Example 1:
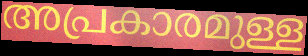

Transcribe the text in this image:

അപ്രകാരമുള്ള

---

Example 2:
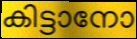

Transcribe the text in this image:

കിട്ടാനോ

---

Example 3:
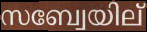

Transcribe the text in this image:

സബ്വേയില്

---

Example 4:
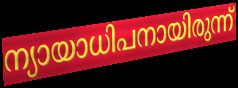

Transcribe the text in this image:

ന്യായാധിപനായിരുന്ന്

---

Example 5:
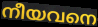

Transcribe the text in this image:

നീയവനെ